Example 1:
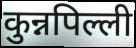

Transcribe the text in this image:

कुन्नपिल्ली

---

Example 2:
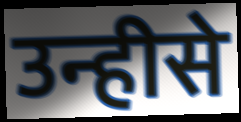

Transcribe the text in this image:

उन्हीसे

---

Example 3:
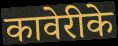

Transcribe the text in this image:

कावेरीके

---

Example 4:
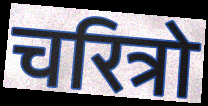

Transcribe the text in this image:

चरित्रो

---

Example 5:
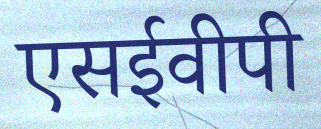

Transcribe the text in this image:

एसईवीपी